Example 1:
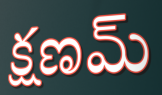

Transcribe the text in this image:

క్షణమ్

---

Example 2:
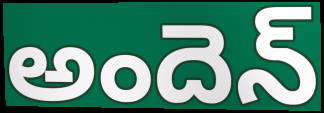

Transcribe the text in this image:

అందెన్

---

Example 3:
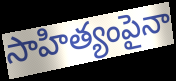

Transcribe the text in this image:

సాహిత్యంపైనా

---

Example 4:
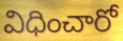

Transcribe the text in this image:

విధించారో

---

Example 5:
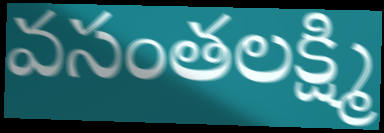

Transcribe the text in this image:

వసంతలక్ష్మి